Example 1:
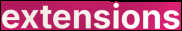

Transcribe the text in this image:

extensions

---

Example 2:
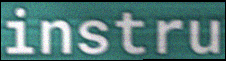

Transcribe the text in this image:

instru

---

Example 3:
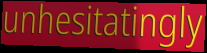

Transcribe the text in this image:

unhesitatingly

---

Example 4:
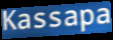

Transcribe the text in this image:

Kassapa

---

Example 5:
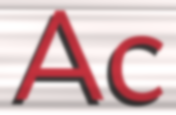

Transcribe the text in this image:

Ac